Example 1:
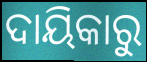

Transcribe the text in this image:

ଦାୟିକାରୁ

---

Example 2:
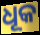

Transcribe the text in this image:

ଧୂକ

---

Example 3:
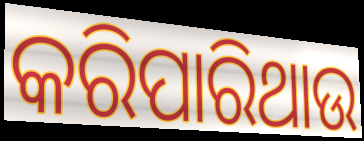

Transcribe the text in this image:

କରିପାରିଥାଉ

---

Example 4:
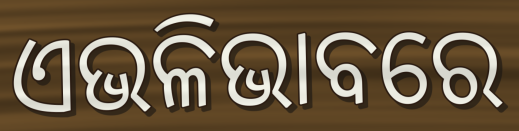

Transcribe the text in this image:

ଏଭଳିଭାବରେ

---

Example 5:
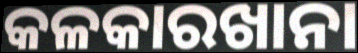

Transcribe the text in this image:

କଳକାରଖାନା